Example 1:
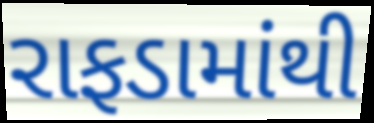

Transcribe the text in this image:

રાફડામાંથી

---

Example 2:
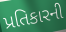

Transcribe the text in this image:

પ્રતિકારની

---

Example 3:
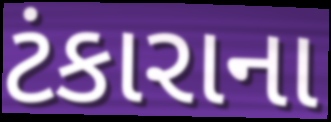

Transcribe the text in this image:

ટંકારાના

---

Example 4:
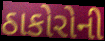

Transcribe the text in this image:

ઠાકોરોની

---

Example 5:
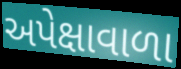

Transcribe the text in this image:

અપેક્ષાવાળા